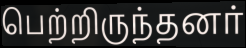
பெற்றிருந்தனர்